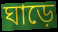
ঘাড়ে